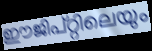
ഈജിപ്റ്റിലെയും